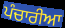
ਪੰਚਾਰੀਆ